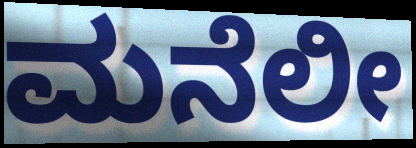
ಮನೆಲೀ